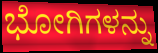
ಭೋಗಿಗಳನ್ನು